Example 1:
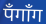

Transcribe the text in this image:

पँगाँग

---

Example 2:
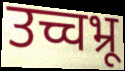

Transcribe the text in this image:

उच्चभ्रू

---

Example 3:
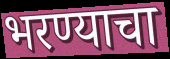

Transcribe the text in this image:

भरण्याचा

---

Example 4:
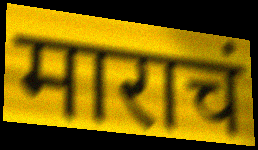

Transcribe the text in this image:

माराचं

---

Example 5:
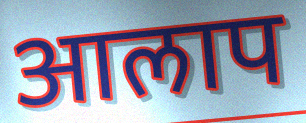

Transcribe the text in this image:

आलाप